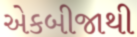
એકબીજાથી